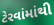
ટેરવાંમાંથી